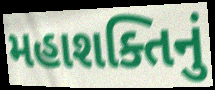
મહાશક્તિનું